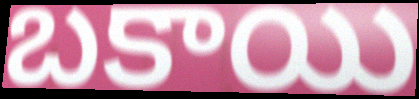
బకాయి